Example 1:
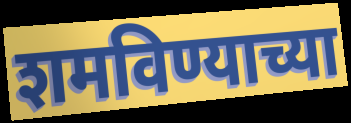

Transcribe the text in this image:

शमविण्याच्या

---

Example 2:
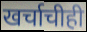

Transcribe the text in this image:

खर्चाचीही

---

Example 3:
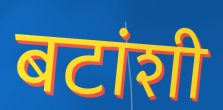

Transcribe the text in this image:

बटांशी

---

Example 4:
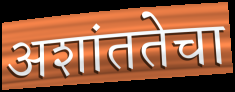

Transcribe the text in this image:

अशांततेचा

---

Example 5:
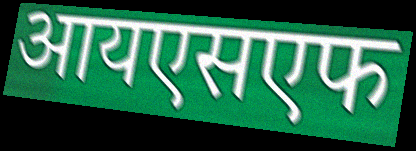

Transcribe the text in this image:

आयएसएफ